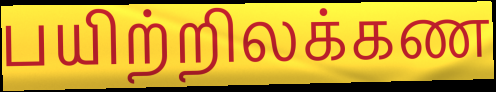
பயிற்றிலக்கண